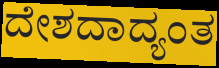
ದೇಶದಾದ್ಯಂತ